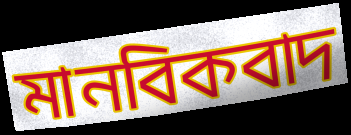
মানবিকবাদ